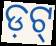
ଡ଼ଟ୍